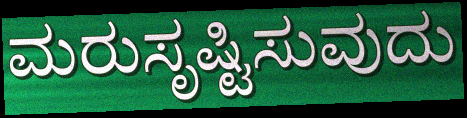
ಮರುಸೃಷ್ಟಿಸುವುದು